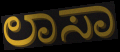
ಲಾಸಾ